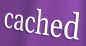
cached